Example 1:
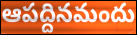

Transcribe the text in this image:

ఆపద్దినమందు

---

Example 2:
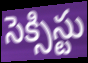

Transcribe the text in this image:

సెక్సిస్టు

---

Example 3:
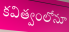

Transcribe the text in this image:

కవిత్వంలోనూ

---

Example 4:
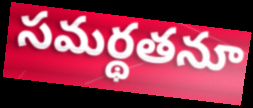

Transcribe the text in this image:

సమర్థతనూ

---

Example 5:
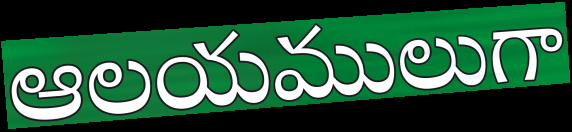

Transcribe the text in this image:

ఆలయములుగా